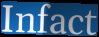
Infact